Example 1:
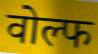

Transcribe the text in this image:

वोल्फ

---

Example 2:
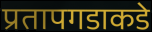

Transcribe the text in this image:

प्रतापगडाकडे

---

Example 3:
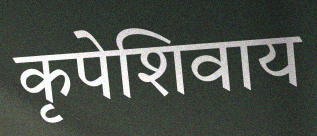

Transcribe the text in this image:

कृपेशिवाय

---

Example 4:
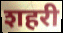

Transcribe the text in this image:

शहरी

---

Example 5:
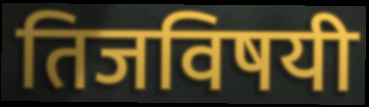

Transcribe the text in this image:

तिजविषयी